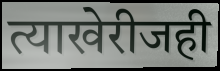
त्याखेरीजही